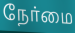
நேர்மை